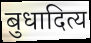
बुधादित्य